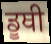
ਡੂਥੀ